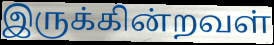
இருக்கின்றவள்